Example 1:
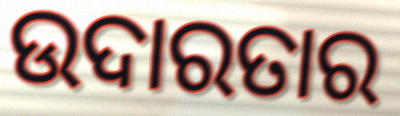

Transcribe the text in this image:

ଉଦାରତାର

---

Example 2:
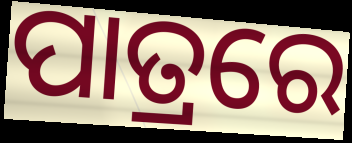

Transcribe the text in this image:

ପାତ୍ରରେ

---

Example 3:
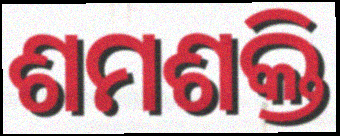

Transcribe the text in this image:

ଶମଶକ୍ତି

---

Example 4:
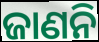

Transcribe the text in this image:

ଜାଣନି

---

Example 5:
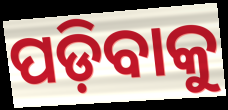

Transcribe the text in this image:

ପଡ଼ିବାକୁ